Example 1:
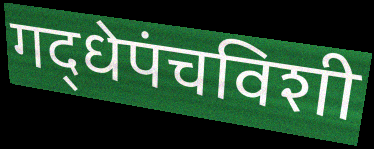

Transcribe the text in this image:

गद्धेपंचविशी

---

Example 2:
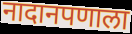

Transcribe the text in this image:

नादानपणाला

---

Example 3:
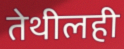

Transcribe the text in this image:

तेथीलही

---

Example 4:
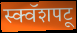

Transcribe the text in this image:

स्क्वॅशपटू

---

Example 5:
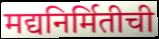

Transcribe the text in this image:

मद्यनिर्मितीची